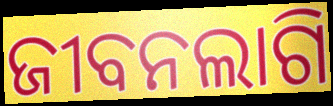
ଜୀବନଲାଗି